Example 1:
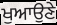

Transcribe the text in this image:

ਖੁਆਉਣੇ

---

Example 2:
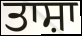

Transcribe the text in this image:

ਤਾਸ਼ਾ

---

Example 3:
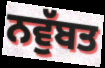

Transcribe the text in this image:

ਨਵੁੱਬਤ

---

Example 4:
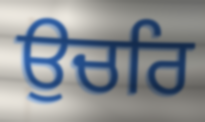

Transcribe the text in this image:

ਉਚਰਿ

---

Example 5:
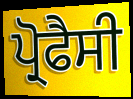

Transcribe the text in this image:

ਪ੍ਰੋਫੈਸੀ